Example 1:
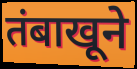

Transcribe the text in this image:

तंबाखूने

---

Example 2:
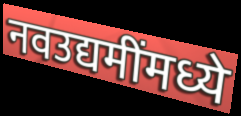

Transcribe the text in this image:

नवउद्यमींमध्ये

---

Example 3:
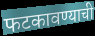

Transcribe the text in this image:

फटकावण्याची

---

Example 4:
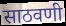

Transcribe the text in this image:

साठवणी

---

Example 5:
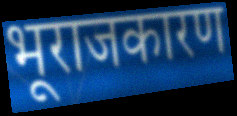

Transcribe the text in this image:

भूराजकारण